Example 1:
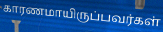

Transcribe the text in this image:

காரணமாயிருப்பவர்கள்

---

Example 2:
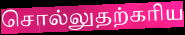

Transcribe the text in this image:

சொல்லுதற்கரிய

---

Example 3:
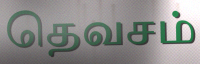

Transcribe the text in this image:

தெவசம்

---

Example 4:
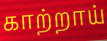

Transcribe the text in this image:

காற்றாய்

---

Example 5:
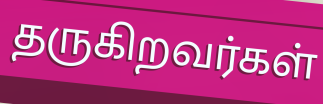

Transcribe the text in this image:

தருகிறவர்கள்